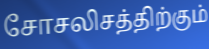
சோசலிசத்திற்கும்